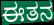
ಈತನ